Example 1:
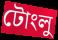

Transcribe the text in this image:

টোংলু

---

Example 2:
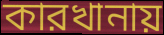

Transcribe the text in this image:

কারখানায়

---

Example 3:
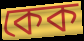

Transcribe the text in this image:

কেক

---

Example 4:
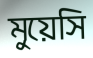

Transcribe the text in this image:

মুয়েসি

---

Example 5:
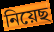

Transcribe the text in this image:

নিয়েছ